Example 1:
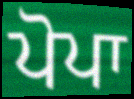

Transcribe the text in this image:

ਪੋਪਾ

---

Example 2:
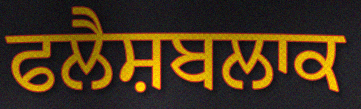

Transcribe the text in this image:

ਫਲੈਸ਼ਬਲਾਕ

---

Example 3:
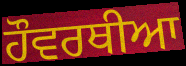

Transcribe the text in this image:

ਹੌਵਰਥੀਆ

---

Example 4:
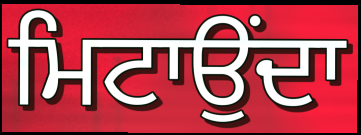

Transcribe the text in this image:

ਮਿਟਾਉਂਦਾ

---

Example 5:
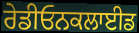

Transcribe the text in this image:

ਰੇਡੀਓਨਕਲਾਈਡ